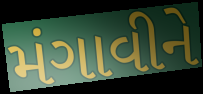
મંગાવીને